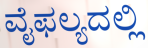
ವೈಫಲ್ಯದಲ್ಲಿ